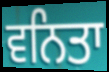
ਵਨਿਤਾ